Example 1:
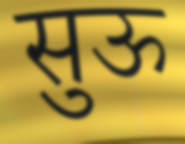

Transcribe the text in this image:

सुऊ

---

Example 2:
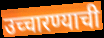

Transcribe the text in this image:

उच्चारण्याची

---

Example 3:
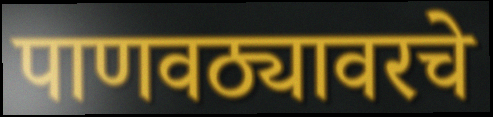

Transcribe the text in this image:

पाणवठ्यावरचे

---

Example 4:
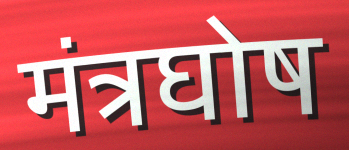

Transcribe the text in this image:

मंत्रघोष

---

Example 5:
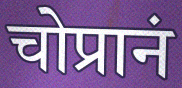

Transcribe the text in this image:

चोप्रानं